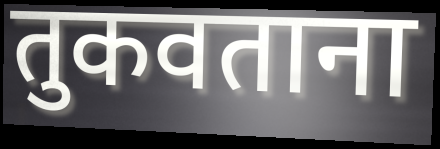
तुकवताना